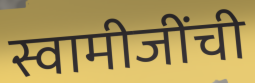
स्वामीजींची